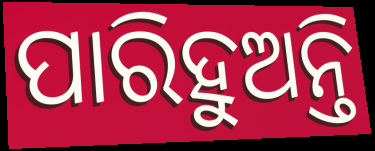
ପାରିହୁଅନ୍ତି